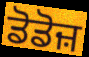
ਡੋਡੋਜ਼